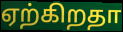
ஏற்கிறதா